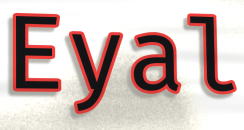
Eyal